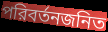
পরিবর্তনজনিত